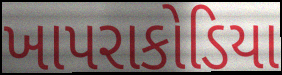
ખાપરાકોડિયા